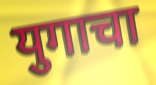
युगाचा